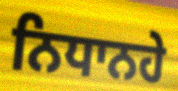
ਨਿਧਾਨਹੇ